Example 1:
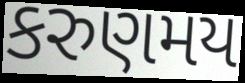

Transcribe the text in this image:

કરુણમય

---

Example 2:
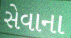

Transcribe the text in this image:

સેવાના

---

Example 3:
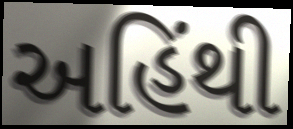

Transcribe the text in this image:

અહિંથી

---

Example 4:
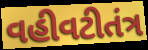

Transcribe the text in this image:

વહીવટીતંત્ર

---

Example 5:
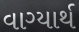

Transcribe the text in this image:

વાગ્યાર્થ